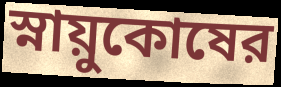
স্নায়ুকোষের